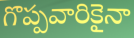
గొప్పవారికైనా